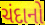
ચંદાનો